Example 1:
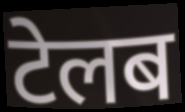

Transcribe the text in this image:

टेलब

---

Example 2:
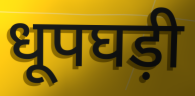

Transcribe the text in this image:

धूपघड़ी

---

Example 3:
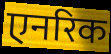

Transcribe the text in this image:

एनरिक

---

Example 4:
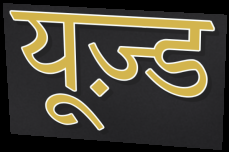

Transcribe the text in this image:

यूज़्ड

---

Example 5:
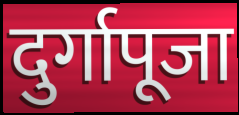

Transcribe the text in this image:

दुर्गापूजा